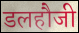
डलहौजी